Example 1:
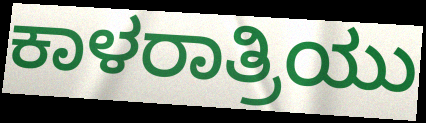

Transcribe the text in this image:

ಕಾಳರಾತ್ರಿಯು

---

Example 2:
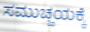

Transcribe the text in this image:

ಸಮುಚ್ಚಯಕ್ಕೆ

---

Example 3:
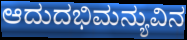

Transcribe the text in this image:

ಆದುದಭಿಮನ್ಯುವಿನ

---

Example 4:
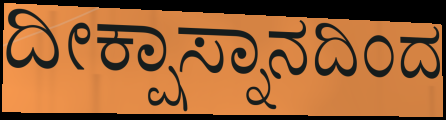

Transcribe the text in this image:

ದೀಕ್ಷಾಸ್ನಾನದಿಂದ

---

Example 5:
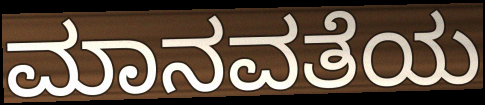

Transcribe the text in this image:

ಮಾನವತೆಯ